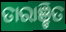
ତାରାଞ୍ଚିତ